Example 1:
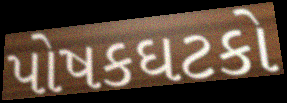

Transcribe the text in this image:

પોષકઘટકો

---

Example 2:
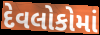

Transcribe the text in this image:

દેવલોકોમાં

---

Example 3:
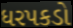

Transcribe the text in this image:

ધરપકડો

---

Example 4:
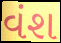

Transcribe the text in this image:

વંશ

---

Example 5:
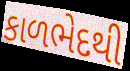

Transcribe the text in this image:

કાળભેદથી